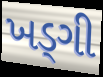
ખડ્ગી